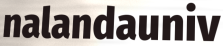
nalandauniv